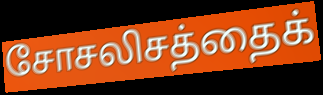
சோசலிசத்தைக்